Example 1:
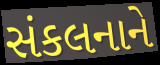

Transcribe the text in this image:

સંકલનાને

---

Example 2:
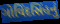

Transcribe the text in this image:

ગોવિંદસિંહનું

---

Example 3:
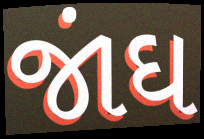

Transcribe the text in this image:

જાંઘ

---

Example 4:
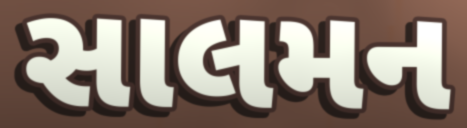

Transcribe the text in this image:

સાલમન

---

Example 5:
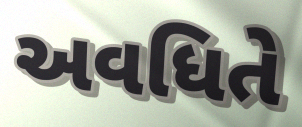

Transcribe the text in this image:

અવધિતે